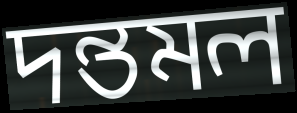
দন্তমল